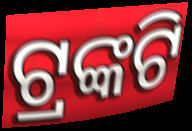
ଟ୍ରଙ୍କଟି